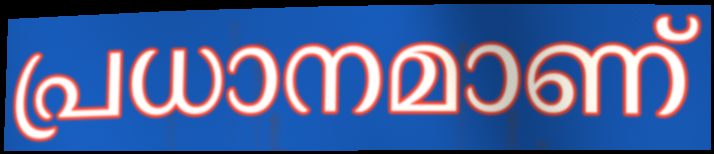
പ്രധാനമാണ്